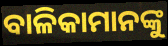
ବାଳିକାମାନଙ୍କୁ